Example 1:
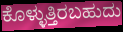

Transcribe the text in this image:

ಕೊಳ್ಳುತ್ತಿರಬಹುದು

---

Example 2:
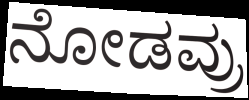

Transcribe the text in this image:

ನೋಡವ್ರು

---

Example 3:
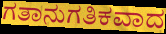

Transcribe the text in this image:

ಗತಾನುಗತಿಕವಾದ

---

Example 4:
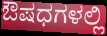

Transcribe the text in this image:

ಔಷಧಗಳಲ್ಲಿ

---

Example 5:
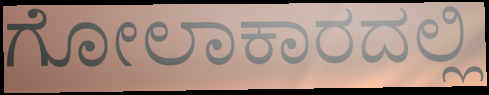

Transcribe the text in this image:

ಗೋಲಾಕಾರದಲ್ಲಿ